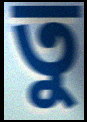
তু